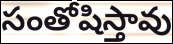
సంతోషిస్తావు